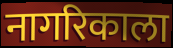
नागरिकाला